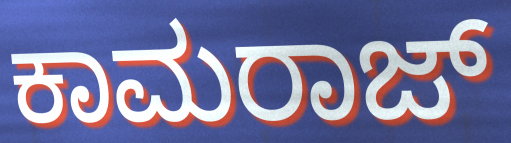
ಕಾಮರಾಜ್